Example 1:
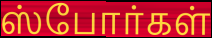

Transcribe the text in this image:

ஸ்போர்கள்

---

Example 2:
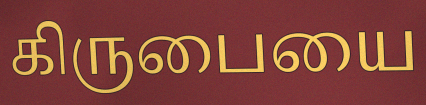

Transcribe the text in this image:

கிருபையை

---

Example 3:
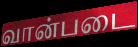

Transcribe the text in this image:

வான்படை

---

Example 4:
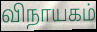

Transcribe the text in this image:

விநாயகம்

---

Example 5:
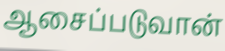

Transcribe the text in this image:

ஆசைப்படுவான்